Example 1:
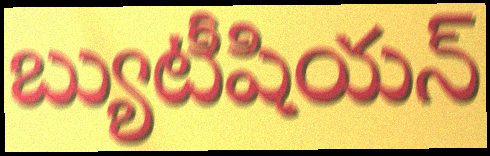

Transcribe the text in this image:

బ్యుటీషియన్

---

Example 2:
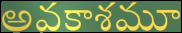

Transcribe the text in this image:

అవకాశమూ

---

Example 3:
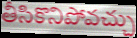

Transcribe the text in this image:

తీసికొనిపోవచ్చు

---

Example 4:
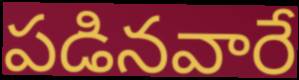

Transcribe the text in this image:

పడినవారే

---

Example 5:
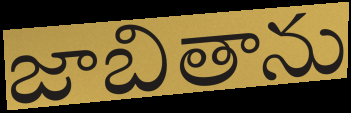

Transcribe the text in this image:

జాబితాను